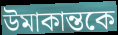
উমাকান্তকে